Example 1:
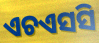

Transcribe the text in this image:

ଏଚଏସସି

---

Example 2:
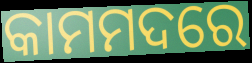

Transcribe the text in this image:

କାମମଦରେ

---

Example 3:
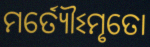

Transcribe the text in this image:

ମର୍ତ୍ୟୌଽମୃତୋ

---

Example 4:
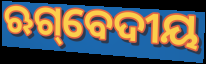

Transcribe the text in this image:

ଋଗ୍‌ବେଦୀୟ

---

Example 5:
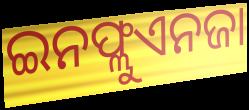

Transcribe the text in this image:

ଇନଫ୍ଲୁଏନଜା